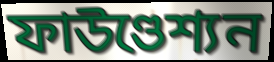
ফাউণ্ডেশ্যন